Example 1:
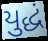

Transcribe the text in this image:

યુદ્ધં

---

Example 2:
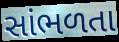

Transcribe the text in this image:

સાંભળતા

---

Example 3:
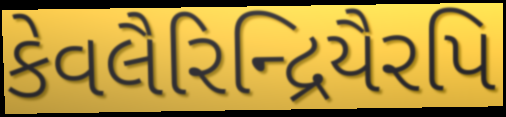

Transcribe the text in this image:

કેવલૈરિન્દ્રિયૈરપિ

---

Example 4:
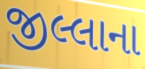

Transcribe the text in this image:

જીલ્લાના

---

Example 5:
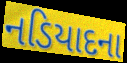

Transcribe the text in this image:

નડિયાદના